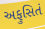
અફુસિતં